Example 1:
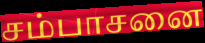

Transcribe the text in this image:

சம்பாசனை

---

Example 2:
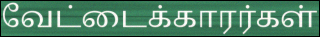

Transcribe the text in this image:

வேட்டைக்காரர்கள்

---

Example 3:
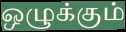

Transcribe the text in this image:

ஒழுக்கும்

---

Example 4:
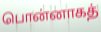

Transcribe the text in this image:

பொன்னாகத்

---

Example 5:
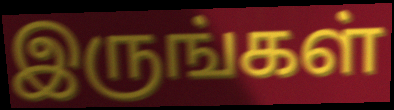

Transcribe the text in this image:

இருங்கள்